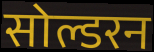
सोल्डरन